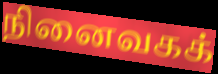
நினைவகக்